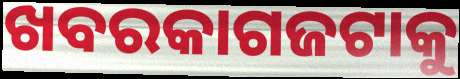
ଖବରକାଗଜଟାକୁ